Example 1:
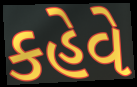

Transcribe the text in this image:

કહેવે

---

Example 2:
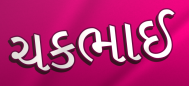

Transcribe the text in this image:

ચકભાઈ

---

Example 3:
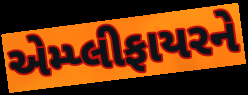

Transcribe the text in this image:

એમ્પ્લીફાયરને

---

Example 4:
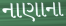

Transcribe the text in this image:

નાણાના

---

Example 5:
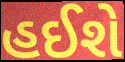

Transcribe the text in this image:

હઈશે